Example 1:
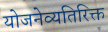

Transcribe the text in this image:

योजनेव्यतिरिक्त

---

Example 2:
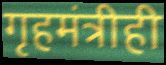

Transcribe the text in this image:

गृहमंत्रीही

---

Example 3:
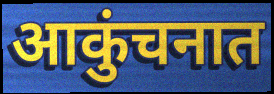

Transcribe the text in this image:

आकुंचनात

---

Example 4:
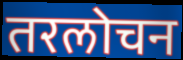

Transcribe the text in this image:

तरलोचन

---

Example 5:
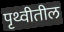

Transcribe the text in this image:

पृथ्वीतील